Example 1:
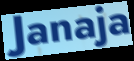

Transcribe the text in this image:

Janaja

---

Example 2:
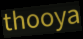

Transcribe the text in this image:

thooya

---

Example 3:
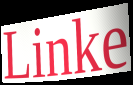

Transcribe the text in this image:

Linke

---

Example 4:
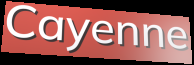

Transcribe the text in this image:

Cayenne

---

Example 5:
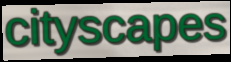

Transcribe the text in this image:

cityscapes